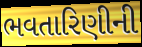
ભવતારિણીની